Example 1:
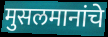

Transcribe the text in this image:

मुसलमानांचे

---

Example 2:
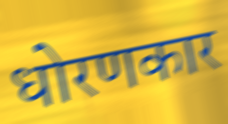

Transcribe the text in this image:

धोरणकार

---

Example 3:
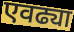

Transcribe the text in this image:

एवढ्या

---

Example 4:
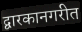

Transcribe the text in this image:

द्वारकानगरीत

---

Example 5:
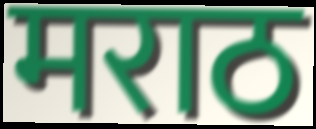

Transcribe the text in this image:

मराठ